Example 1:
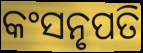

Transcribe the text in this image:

କଂସନୃପତି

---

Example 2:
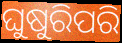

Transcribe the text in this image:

ଘୁଷୁରିପରି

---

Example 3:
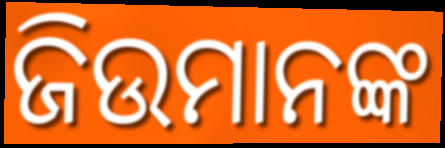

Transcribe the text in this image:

ଜିଉମାନଙ୍କ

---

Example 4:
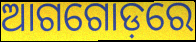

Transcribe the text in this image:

ଆଗଗୋଡ଼ରେ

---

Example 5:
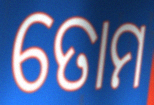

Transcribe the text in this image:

ତୋମ